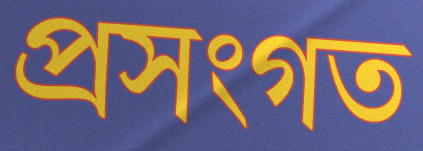
প্ৰসংগত